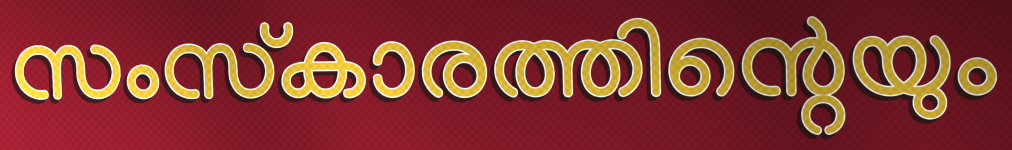
സംസ്‌കാരത്തിന്റെയും